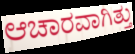
ಆಚಾರವಾಗಿತ್ತು